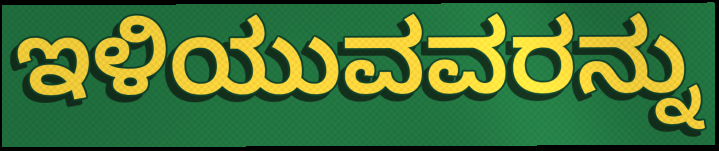
ಇಳಿಯುವವರನ್ನು